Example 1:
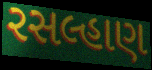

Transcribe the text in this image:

રસલ્હાણ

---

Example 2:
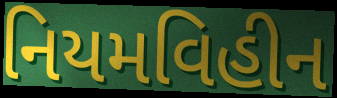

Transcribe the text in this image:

નિયમવિહીન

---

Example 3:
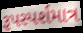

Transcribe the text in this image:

રૂપસ્પર્શમાત્ર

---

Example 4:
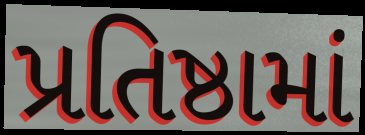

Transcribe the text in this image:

પ્રતિષ્ઠામાં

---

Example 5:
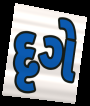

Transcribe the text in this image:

દૃગે